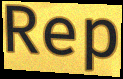
Rep